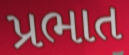
પ્રભાત